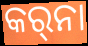
କର୍‍ନା